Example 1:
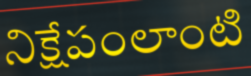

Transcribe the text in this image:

నిక్షేపంలాంటి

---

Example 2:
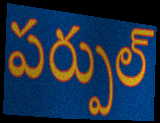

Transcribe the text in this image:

పర్పుల్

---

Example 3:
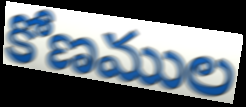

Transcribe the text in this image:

కోణముల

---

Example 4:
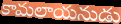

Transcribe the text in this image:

కామలాయనుడు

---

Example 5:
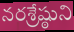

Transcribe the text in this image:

నరశ్రేష్ఠుని